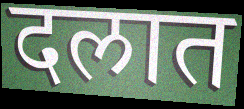
दलात